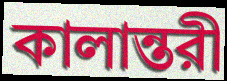
কালান্তরী